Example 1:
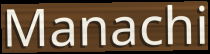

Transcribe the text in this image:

Manachi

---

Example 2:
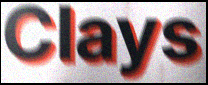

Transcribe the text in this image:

Clays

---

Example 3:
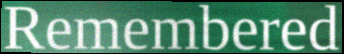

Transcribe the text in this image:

Remembered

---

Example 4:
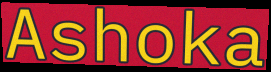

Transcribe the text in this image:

Ashoka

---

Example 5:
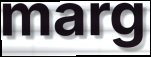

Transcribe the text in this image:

marg